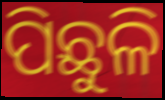
ପିଛୁଳି